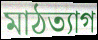
মাঠত্যাগ